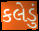
કલેડું